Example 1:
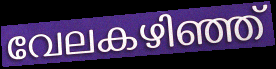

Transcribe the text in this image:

വേലകഴിഞ്ഞ്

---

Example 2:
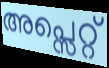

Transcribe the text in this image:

അപ്സെറ്റ്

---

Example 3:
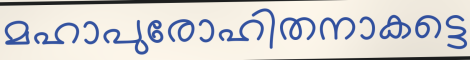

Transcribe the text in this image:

മഹാപുരോഹിതനാകട്ടെ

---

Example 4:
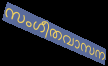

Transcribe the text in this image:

സംഗീതവാസന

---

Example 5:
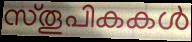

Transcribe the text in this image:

സ്തൂപികകൾ